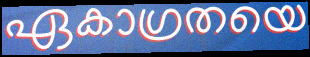
ഏകാഗ്രതയെ